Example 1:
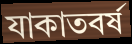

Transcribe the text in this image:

যাকাতবর্ষ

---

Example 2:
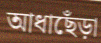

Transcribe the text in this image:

আধাছেঁড়া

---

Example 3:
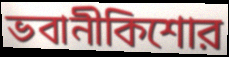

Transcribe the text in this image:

ভবানীকিশোর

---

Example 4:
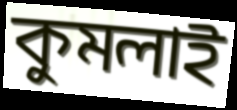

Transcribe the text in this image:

কুমলাই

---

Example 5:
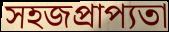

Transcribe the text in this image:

সহজপ্রাপ্যতা